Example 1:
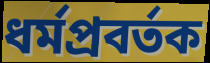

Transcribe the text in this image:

ধর্মপ্রবর্তক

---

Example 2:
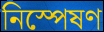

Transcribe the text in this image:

নিস্পেষণ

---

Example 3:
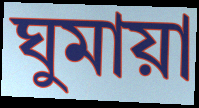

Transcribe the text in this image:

ঘুমায়া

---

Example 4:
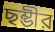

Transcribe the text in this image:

ছম্ভীর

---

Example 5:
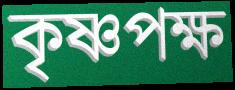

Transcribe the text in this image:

কৃষ্ণপক্ষ